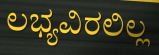
ಲಭ್ಯವಿರಲಿಲ್ಲ